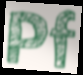
Pf